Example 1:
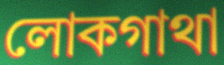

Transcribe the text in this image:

লোকগাথা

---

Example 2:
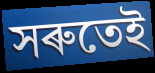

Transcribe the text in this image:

সৰুতেই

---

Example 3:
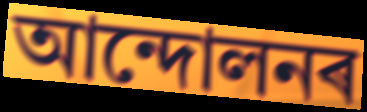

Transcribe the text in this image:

আন্দোলনৰ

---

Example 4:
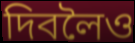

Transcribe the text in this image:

দিবলৈও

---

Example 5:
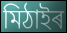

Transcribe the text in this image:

মিঠাইৰ